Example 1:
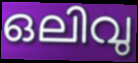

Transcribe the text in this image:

ഒലിവു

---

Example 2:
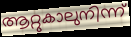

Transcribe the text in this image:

ആറ്റുകാലുനിന്ന്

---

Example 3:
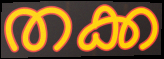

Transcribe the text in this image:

തക്ക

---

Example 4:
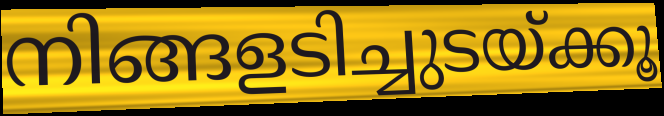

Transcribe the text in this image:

നിങ്ങളടിച്ചുടയ്ക്കൂ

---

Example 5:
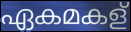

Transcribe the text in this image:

ഏകമകള്